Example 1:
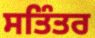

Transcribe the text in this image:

ਸਤਿੰਤਰ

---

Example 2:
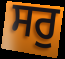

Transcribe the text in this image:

ਸਰੁ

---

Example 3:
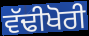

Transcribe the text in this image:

ਵੱਢੀਖੋਰੀ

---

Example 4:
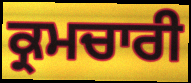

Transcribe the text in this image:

ਕ੍ਰਮਚਾਰੀ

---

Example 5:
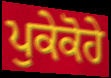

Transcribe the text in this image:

ਪੁਕੇਕੋਹੇ